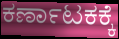
ಕರ್ಣಾಟಕಕ್ಕೆ